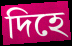
দিহে